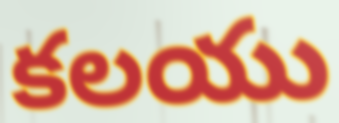
కలయు